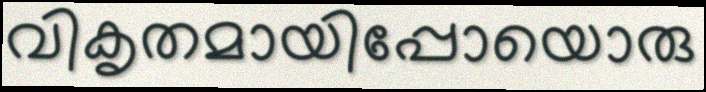
വികൃതമായിപ്പോയൊരു